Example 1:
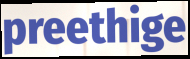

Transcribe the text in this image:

preethige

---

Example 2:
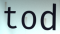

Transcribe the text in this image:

tod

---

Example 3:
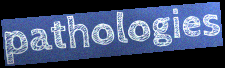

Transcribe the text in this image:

pathologies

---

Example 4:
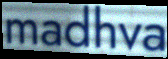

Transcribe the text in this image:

madhva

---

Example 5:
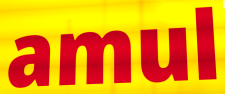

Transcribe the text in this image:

amul